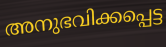
അനുഭവിക്കപ്പെട്ട